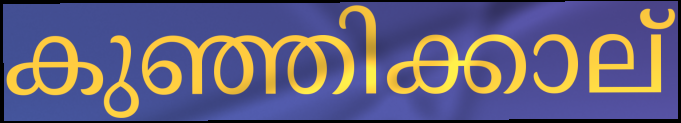
കുഞ്ഞിക്കാല്